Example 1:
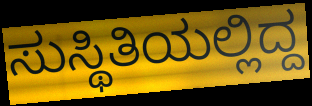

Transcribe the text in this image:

ಸುಸ್ಥಿತಿಯಲ್ಲಿದ್ದ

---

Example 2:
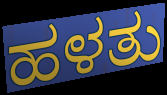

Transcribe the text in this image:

ಹಳತು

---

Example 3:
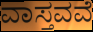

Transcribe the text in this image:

ವಾಸ್ತವವೆ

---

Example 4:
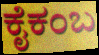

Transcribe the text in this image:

ಕೈಕಂಬ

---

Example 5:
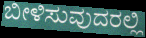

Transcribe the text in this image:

ಬೀಳಿಸುವುದರಲ್ಲಿ